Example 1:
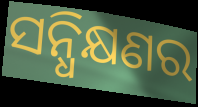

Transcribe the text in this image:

ସନ୍ଧିକ୍ଷଣର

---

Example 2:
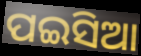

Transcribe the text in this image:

ପଇସିଆ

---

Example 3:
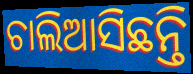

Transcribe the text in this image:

ଚାଲିଆସିଛନ୍ତି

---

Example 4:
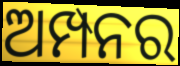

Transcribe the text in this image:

ଅମ୍ପନର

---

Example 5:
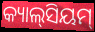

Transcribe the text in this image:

କ୍ୟାଲ୍‌ସିୟମ୍